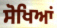
ਸੋਖਿਆਂ